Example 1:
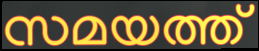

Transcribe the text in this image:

സമയത്ത്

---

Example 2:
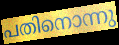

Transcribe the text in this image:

പതിനൊന്നു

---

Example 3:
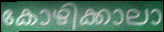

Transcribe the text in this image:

കോഴിക്കാലാ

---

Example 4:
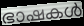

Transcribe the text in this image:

ഭാഷകൾ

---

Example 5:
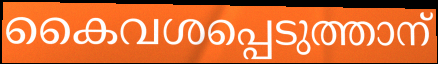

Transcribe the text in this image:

കൈവശപ്പെടുത്താന്